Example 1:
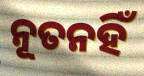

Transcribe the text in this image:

ନୂତନହିଁ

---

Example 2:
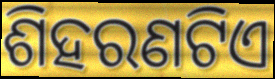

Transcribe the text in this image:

ଶିହରଣଟିଏ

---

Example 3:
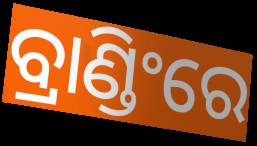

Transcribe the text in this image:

ବ୍ରାଣ୍ଡିଂରେ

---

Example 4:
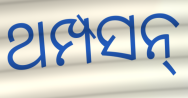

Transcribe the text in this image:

ଥମ୍ପସନ୍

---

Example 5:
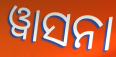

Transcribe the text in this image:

ୱାସନା